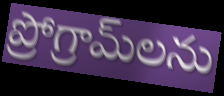
ప్రోగ్రామ్‌లను